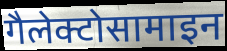
गैलेक्टोसामाइन